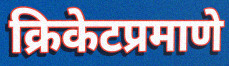
क्रिकेटप्रमाणे